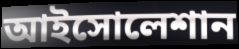
আইসোলেশান